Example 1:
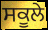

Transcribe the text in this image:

ਸਕੂਲੇ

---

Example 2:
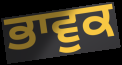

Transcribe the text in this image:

ਭਾਵੁਕ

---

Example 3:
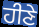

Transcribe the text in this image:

ਹੀਣੇ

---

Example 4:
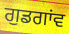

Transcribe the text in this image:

ਗੁਡਗਾਂਵ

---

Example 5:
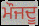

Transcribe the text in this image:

ਮੌਜਦੂ